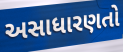
અસાધારણતો